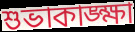
শুভাকাঙ্ক্ষা